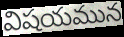
విషయమున